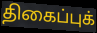
திகைப்புக்